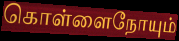
கொள்ளைநோயும்